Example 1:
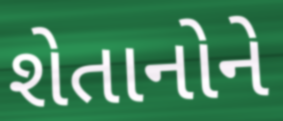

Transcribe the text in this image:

શેતાનોને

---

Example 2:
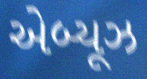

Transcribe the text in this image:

એબ્યૂઝ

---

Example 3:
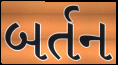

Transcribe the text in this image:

બર્તન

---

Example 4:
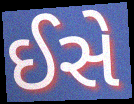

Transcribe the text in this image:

ઈસે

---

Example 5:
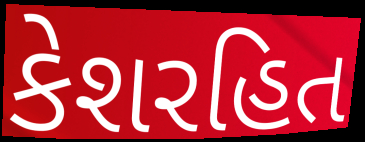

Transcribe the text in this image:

કેશરહિત